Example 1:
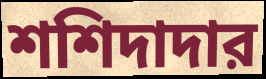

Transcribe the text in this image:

শশিদাদার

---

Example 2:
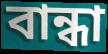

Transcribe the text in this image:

বান্ধা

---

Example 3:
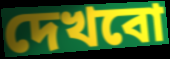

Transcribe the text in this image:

দেখবো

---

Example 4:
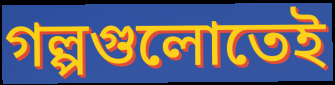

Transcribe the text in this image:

গল্পগুলোতেই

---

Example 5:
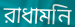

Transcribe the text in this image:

রাধামনি